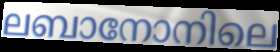
ലബാനോനിലെ